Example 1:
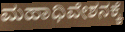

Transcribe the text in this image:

ಮಹಾಧಿವೇಶನಕ್ಕೆ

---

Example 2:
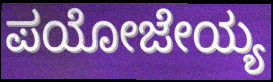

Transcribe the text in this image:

ಪಯೋಜೇಯ್ಯ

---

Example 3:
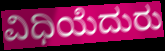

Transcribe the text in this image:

ವಿಧಿಯೆದುರು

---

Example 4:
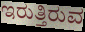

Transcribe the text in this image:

ಇರುತ್ತಿರುವ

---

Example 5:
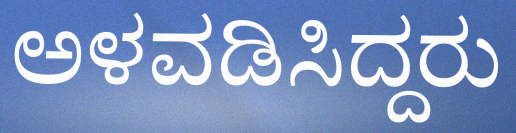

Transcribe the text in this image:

ಅಳವಡಿಸಿದ್ದರು